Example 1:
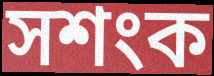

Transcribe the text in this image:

সশংক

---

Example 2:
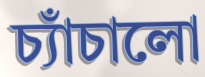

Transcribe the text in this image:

চ্যাঁচালো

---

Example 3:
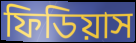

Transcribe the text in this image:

ফিডিয়াস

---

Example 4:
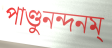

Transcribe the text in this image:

পাণ্ডুনন্দনম্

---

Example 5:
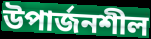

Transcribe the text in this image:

উপার্জনশীল